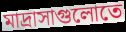
মাদ্রাসাগুলোতে